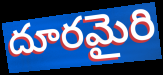
దూరమైరి